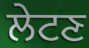
ਲੇਟਣ